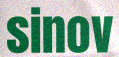
sinov